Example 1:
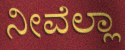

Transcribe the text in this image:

ನೀವೆಲ್ಲಾ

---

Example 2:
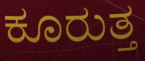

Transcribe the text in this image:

ಕೂರುತ್ತ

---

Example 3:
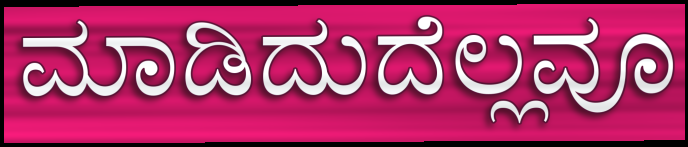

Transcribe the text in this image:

ಮಾಡಿದುದೆಲ್ಲವೂ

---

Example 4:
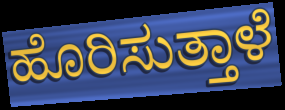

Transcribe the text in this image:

ಹೊರಿಸುತ್ತಾಳೆ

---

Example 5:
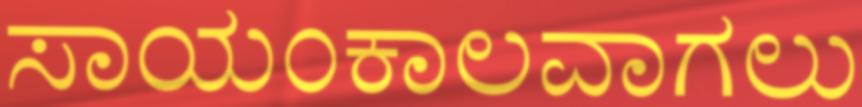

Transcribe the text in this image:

ಸಾಯಂಕಾಲವಾಗಲು